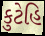
કુટેહિ